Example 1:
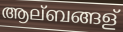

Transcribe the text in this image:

ആല്ബങ്ങള്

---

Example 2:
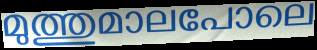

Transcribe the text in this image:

മുത്തുമാലപോലെ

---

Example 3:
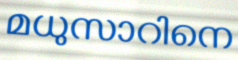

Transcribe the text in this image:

മധുസാറിനെ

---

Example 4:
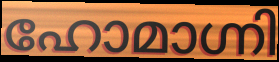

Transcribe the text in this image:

ഹോമാഗ്നി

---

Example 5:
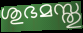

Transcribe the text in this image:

ശുഭമസ്തു